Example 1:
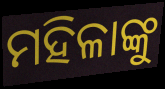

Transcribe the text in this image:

ମହିଳାଙ୍କୁ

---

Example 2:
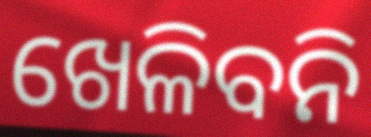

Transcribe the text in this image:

ଖେଳିବନି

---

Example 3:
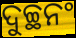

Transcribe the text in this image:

ଦୁଚ୍ଛନଂ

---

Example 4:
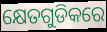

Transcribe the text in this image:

କ୍ଷେତଗୁଡିକରେ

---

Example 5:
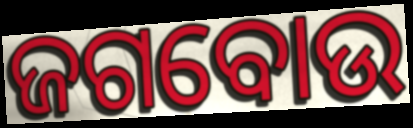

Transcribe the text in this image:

ଜଗବୋଉ